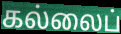
கல்லைப்